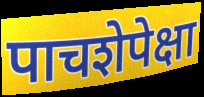
पाचशेपेक्षा